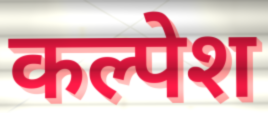
कल्पेश